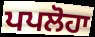
ਪਪਲੋਹਾ